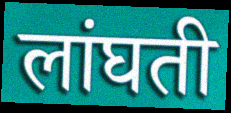
लांघती